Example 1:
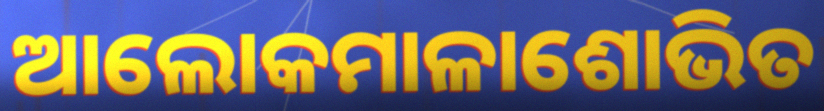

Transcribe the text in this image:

ଆଲୋକମାଳାଶୋଭିତ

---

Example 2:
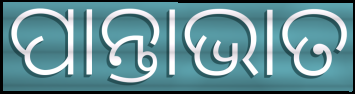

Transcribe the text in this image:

ପାନ୍ତାଭାତ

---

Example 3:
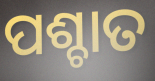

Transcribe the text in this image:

ପଶ୍ଚାତ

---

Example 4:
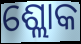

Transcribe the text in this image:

ଶ୍ଲୋକ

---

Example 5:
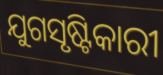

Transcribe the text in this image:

ଯୁଗସୃଷ୍ଟିକାରୀ